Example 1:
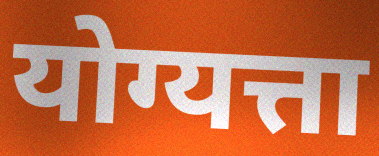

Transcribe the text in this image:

योग्यत्ता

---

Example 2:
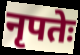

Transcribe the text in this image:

नृपतेः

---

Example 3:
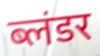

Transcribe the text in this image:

ब्लंडर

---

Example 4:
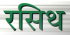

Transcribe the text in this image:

रसिथ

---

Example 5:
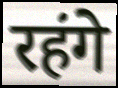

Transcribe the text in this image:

रहंगे